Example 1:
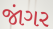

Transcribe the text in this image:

જાંગર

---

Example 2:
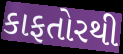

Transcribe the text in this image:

કાફતોરથી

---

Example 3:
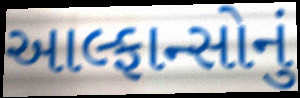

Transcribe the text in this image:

આલ્ફાન્સોનું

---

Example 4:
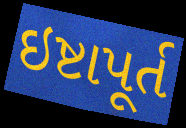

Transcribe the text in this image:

ઇષ્ટાપૂર્ત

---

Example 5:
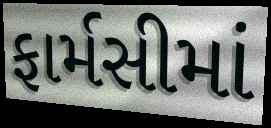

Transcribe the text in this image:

ફાર્મસીમાં